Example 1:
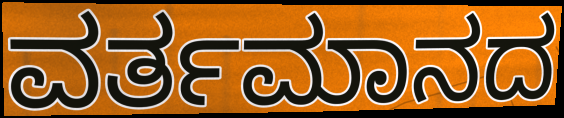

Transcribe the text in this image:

ವರ್ತಮಾನದ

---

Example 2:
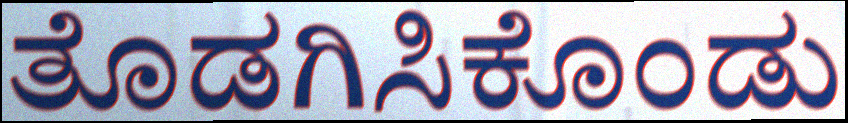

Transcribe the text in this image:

ತೊಡಗಿಸಿಕೊಂಡು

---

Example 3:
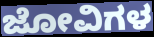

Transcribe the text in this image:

ಜೋವಿಗಳ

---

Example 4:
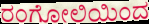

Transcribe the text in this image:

ರಂಗೋಲಿಯಿಂದ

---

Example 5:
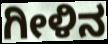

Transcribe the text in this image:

ಗೀಳಿನ